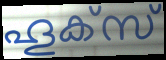
ഹൂക്സ്